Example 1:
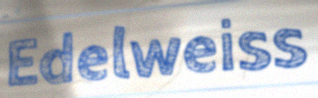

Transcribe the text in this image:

Edelweiss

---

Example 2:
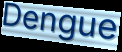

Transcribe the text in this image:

Dengue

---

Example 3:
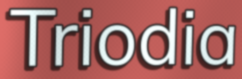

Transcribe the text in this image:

Triodia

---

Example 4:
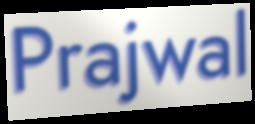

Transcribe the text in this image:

Prajwal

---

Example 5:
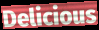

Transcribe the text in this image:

Delicious